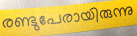
രണ്ടുപേരായിരുന്നു